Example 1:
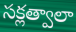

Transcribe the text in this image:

సక్లత్వాలా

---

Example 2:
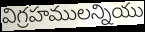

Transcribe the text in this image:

విగ్రహములన్నియు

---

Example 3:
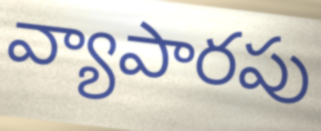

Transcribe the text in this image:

వ్యాపారపు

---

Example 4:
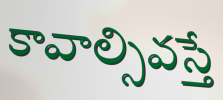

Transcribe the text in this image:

కావాల్సివస్తే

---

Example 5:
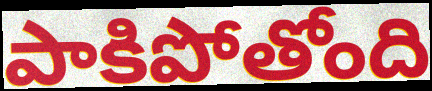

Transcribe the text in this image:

పాకిపోతోంది